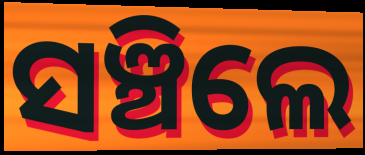
ସଞ୍ଚିଲେ